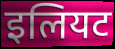
इलियट